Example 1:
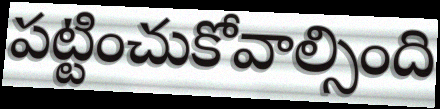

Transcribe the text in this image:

పట్టించుకోవాల్సింది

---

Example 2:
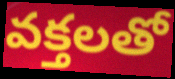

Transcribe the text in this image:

వక్తలతో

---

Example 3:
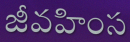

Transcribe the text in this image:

జీవహింస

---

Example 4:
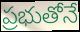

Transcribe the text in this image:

ప్రభుతోనే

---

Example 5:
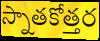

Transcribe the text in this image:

స్నాతకోత్తర